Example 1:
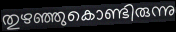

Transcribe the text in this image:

തുഴഞ്ഞുകൊണ്ടിരുന്നു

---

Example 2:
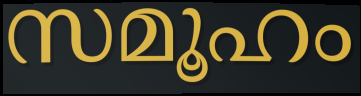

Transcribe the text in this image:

സമൂഹം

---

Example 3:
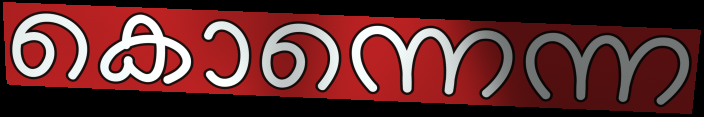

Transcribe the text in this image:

കൊന്നെന്ന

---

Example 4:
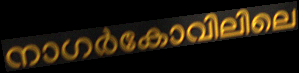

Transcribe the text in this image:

നാഗർകോവിലിലെ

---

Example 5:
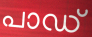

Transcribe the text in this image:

പാഡ്